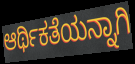
ಆರ್ಥಿಕತೆಯನ್ನಾಗಿ